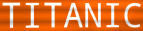
TITANIC